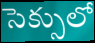
సెక్సులో